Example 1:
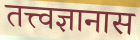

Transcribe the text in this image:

तत्त्वज्ञानास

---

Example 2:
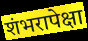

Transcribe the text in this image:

शंभरापेक्षा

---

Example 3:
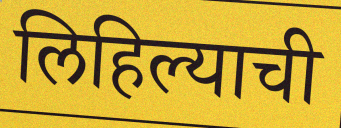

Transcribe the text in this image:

लिहिल्याची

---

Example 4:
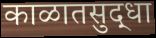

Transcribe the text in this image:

काळातसुद्धा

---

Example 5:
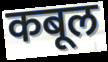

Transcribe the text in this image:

कबूल